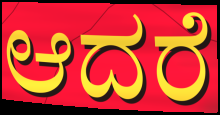
ಆದರೆ